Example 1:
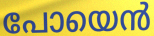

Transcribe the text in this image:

പോയെൻ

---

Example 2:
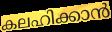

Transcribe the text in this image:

കലഹിക്കാൻ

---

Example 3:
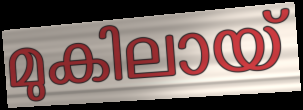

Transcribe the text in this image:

മുകിലായ്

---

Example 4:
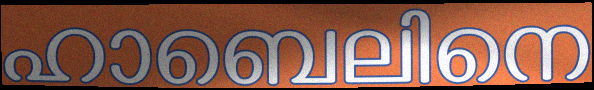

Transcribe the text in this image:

ഹാബെലിനെ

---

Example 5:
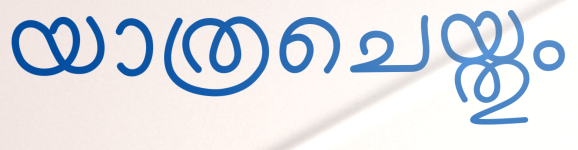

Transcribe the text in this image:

യാത്രചെയ്തും